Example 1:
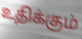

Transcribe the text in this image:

உதிக்கும்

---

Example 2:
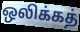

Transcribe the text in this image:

ஒலிக்கத்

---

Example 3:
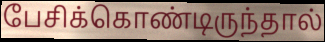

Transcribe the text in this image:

பேசிக்கொண்டிருந்தால்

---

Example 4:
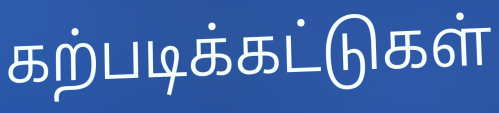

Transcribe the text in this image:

கற்படிக்கட்டுகள்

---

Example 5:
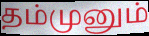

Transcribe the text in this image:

தம்முனும்